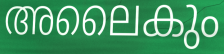
അലൈകും